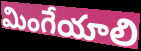
మింగేయాలి